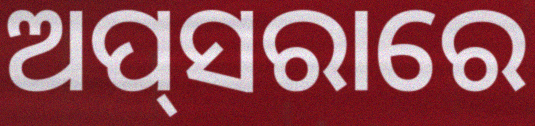
ଅପ୍‌ସରାରେ